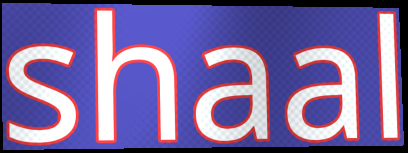
shaal